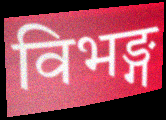
विभङ्ग